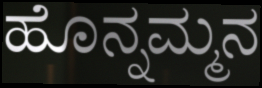
ಹೊನ್ನಮ್ಮನ